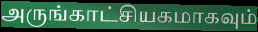
அருங்காட்சியகமாகவும்